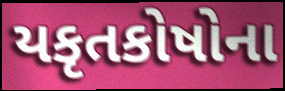
યકૃતકોષોના